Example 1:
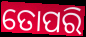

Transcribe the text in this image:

ତୋପରି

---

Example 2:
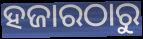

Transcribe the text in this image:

ହଜାରଠାରୁ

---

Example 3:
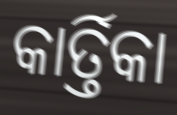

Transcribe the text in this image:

କାର୍ତ୍ତିକା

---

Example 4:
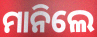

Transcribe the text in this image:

ମାନିଲେ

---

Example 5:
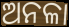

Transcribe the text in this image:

ଅନଳା